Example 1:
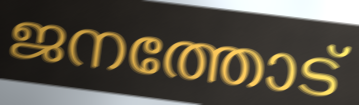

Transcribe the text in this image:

ജനത്തോട്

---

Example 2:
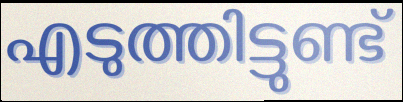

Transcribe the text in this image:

എടുത്തിട്ടുണ്ട്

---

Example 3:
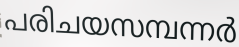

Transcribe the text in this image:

പരിചയസമ്പന്നർ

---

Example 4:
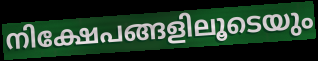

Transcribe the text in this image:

നിക്ഷേപങ്ങളിലൂടെയും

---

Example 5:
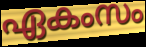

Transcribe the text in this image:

ഏകംസം